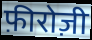
फ़ीरोज़ी